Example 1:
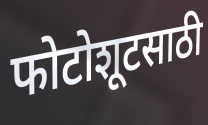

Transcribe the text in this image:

फोटोशूटसाठी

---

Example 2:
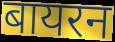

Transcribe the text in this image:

बायरन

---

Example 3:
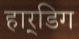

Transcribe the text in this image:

हार्डिग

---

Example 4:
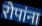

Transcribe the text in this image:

रोपांना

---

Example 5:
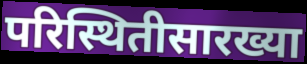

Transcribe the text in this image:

परिस्थितीसारख्या